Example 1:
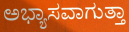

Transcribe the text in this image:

ಅಭ್ಯಾಸವಾಗುತ್ತಾ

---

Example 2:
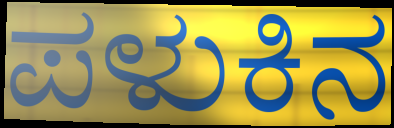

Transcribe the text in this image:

ಪಳುಕಿನ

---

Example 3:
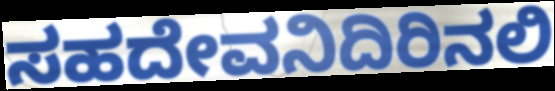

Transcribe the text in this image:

ಸಹದೇವನಿದಿರಿನಲಿ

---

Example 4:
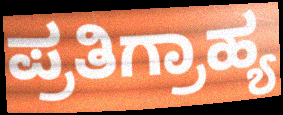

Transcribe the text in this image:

ಪ್ರತಿಗ್ರಾಹ್ಯ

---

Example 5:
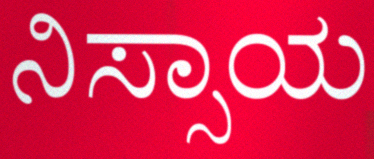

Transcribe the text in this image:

ನಿಸ್ಸಾಯ